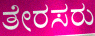
ತೇರಸರು